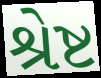
શ્રેષ્ટ